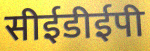
सीईडीईपी